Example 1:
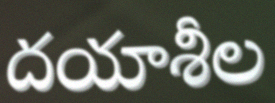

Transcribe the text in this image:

దయాశీల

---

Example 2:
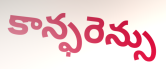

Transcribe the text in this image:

కాన్ఫరెన్సు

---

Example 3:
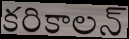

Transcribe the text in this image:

కరికాలన్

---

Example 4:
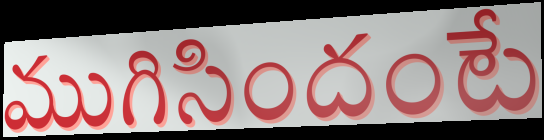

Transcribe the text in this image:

ముగిసిందంటే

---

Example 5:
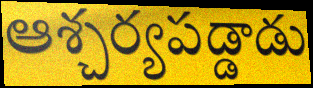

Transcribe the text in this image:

ఆశ్చర్యపడ్డాడు